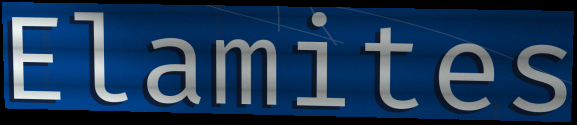
Elamites